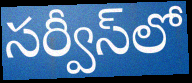
సర్వీస్‌లో